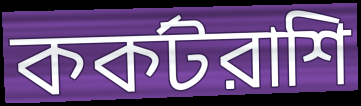
কর্কটরাশি